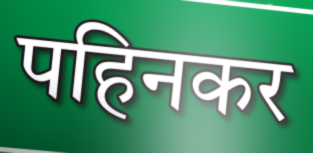
पहिनकर